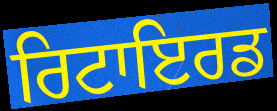
ਰਿਟਾਇਰਡ